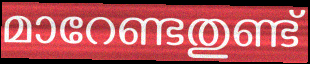
മാറേണ്ടതുണ്ട്